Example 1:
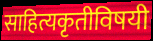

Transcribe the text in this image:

साहित्यकृतीविषयी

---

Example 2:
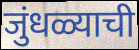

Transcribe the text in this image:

जुंधळ्याची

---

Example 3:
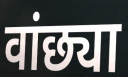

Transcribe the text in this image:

वांछ्या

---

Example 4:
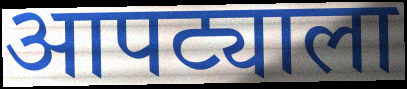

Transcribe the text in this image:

आपट्याला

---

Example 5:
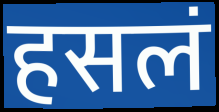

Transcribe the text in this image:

हसलं